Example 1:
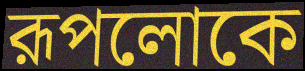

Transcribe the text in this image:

রূপলোকে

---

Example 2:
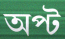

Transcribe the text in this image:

অপ্ট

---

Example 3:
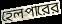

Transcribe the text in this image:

হেলপারের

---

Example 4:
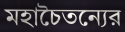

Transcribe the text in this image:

মহাচৈতন্যের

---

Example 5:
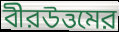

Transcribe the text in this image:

বীরউত্তমের